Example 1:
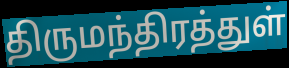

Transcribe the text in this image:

திருமந்திரத்துள்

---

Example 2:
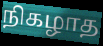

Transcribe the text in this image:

நிகழாத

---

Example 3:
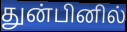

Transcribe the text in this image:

துன்பினில்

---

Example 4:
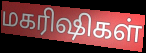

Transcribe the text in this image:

மகரிஷிகள்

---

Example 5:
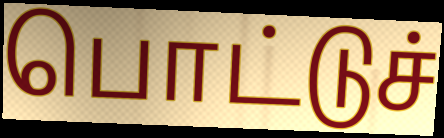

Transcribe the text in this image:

பொட்டுச்